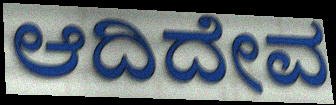
ಆದಿದೇವ